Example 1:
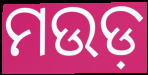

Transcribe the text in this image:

ମଉଡ଼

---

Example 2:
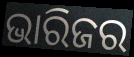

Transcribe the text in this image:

ଭାରିଜର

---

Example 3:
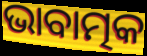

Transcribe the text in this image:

ଭାବାତ୍ମକ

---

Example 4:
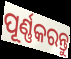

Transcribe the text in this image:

ପୂର୍ଣ୍ଣକରନ୍ତୁ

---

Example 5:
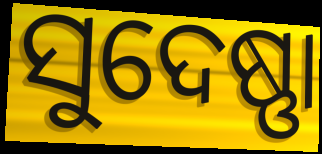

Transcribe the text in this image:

ସୁଦେଷ୍ଣା